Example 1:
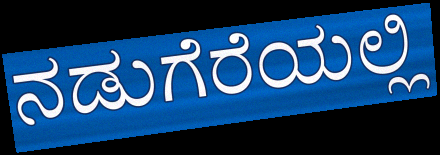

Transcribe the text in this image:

ನಡುಗೆರೆಯಲ್ಲಿ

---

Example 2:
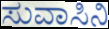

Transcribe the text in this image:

ಸುವಾಸಿನಿ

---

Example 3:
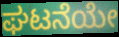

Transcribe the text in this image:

ಘಟನೆಯೇ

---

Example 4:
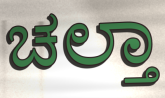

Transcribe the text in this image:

ಚಲ್ತಾ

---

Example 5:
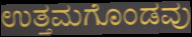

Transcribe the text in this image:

ಉತ್ತಮಗೊಂಡವು